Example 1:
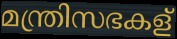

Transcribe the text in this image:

മന്ത്രിസഭകള്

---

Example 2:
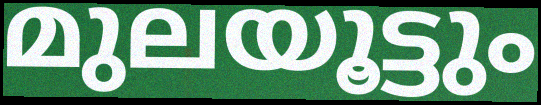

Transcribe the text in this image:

മുലയൂട്ടും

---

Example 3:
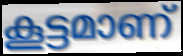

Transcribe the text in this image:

കൂട്ടമാണ്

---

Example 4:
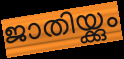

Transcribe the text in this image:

ജാതിയ്ക്കും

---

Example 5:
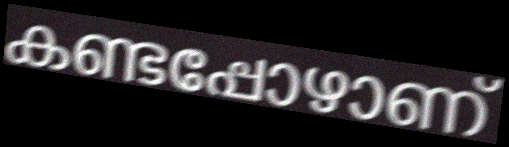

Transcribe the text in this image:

കണ്ടപ്പോഴാണ്